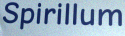
Spirillum